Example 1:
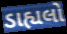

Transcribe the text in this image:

ડાહ્યલો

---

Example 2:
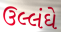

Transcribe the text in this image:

ઉલ્લંઘે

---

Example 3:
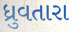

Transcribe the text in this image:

ધ્રુવતારા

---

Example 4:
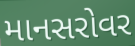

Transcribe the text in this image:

માનસરોવર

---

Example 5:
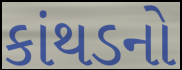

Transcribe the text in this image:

કાંથડનો